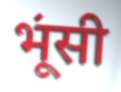
भूंसी